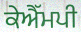
ਕੇਐੱਮਪੀ